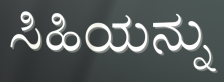
ಸಿಹಿಯನ್ನು